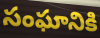
సంఘానికి